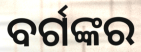
ବର୍ଗଙ୍କର